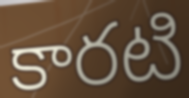
కారటి